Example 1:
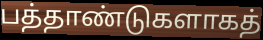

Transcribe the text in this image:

பத்தாண்டுகளாகத்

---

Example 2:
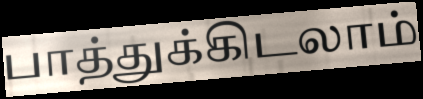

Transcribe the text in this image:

பாத்துக்கிடலாம்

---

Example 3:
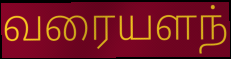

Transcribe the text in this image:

வரையளந்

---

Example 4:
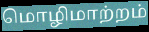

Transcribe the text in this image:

மொழிமாற்றம்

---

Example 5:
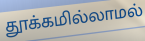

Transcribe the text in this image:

தூக்கமில்லாமல்